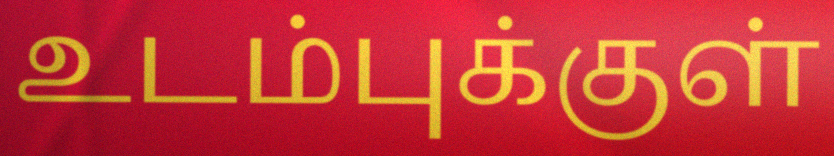
உடம்புக்குள்